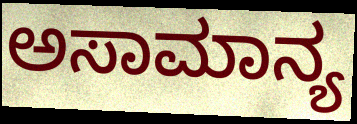
ಅಸಾಮಾನ್ಯ